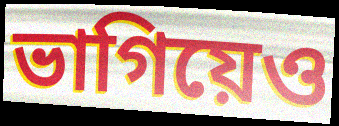
ভাগিয়েও